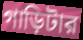
গাড়িটার